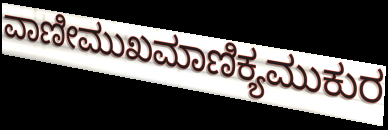
ವಾಣೀಮುಖಮಾಣಿಕ್ಯಮುಕುರ